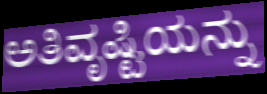
ಅತಿವೃಷ್ಟಿಯನ್ನು